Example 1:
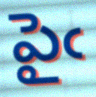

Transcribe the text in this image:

పైఁ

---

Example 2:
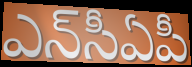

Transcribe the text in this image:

ఎన్‌సీఏపీ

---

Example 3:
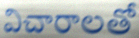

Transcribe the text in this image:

విచారాలతో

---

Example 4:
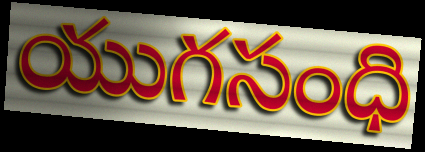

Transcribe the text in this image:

యుగసంధి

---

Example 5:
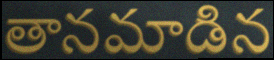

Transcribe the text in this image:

తానమాడిన